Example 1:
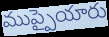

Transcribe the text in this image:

ముప్పైయారు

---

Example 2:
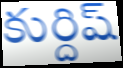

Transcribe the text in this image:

కుర్దిష్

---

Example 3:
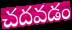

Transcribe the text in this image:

చదవడం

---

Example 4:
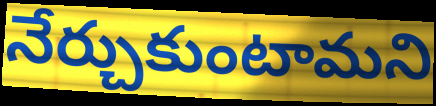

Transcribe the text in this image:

నేర్చుకుంటామని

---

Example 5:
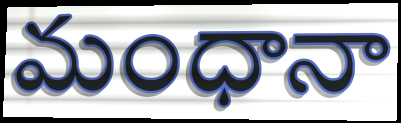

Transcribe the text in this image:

మంధానా